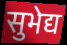
सुभेद्य